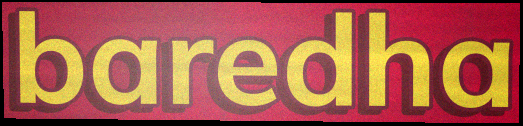
baredha